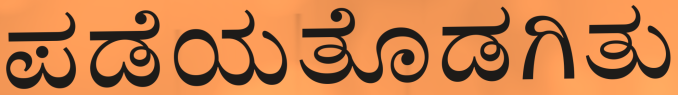
ಪಡೆಯತೊಡಗಿತು